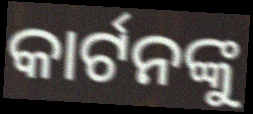
କାର୍ଟନଙ୍କୁ